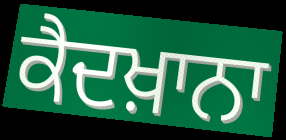
ਕੈਦਖ਼ਾਨਾ